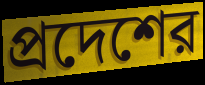
প্রদেশের